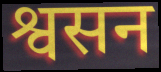
श्वसन